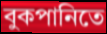
বুকপানিতে